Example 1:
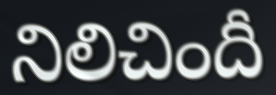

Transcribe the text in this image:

నిలిచిందీ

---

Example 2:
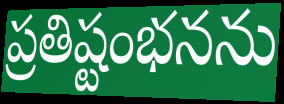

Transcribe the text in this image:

ప్రతిష్టంభనను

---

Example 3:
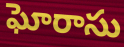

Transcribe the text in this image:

ఘోరాసు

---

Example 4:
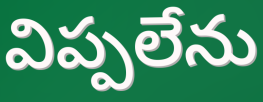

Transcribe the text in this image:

విప్పలేను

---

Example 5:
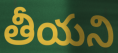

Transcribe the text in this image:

తీయని